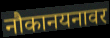
नौकानयनावर